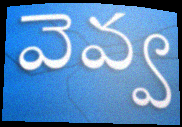
వెవ్వ